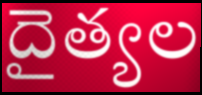
దైత్యల